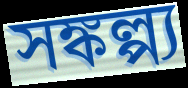
সঙ্কল্প্য